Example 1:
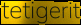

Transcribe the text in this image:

tetigerit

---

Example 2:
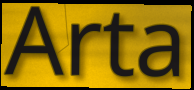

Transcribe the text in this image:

Arta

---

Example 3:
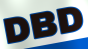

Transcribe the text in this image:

DBD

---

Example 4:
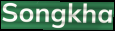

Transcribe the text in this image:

Songkha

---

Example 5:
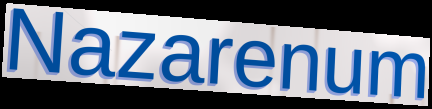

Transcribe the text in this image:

Nazarenum